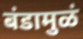
बंडामुळं